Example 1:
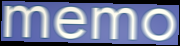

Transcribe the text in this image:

memo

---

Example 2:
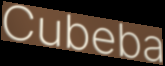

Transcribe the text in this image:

Cubeba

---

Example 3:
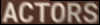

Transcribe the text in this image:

ACTORS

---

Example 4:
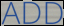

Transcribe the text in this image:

ADD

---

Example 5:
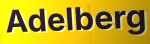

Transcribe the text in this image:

Adelberg